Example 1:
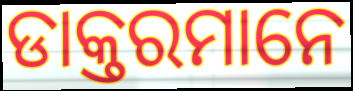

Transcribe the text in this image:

ଡାକ୍ତରମାନେ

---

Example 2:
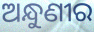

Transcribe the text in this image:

ଅନ୍ଧୁଣୀର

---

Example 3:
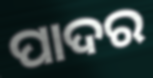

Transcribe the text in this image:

ପାଦର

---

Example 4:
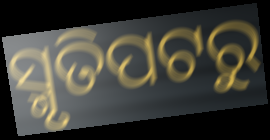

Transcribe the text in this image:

ସ୍ମୃତିପଟରୁ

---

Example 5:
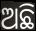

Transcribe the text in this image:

ଅଛି